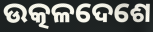
ଉତ୍କଳଦେଶେ